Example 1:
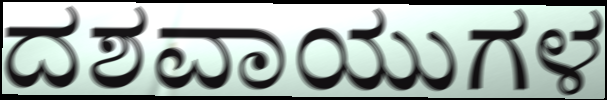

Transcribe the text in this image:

ದಶವಾಯುಗಳ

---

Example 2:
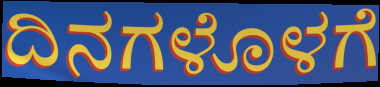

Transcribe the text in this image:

ದಿನಗಳೊಳಗೆ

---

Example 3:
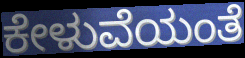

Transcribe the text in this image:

ಕೇಳುವೆಯಂತೆ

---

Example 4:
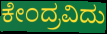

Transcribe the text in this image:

ಕೇಂದ್ರವಿದು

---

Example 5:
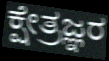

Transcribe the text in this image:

ಕ್ಷೇತ್ರಜ್ಞರ